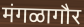
मंगळागौर